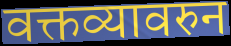
वक्तव्यावरुन